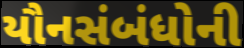
યૌનસંબંધોની